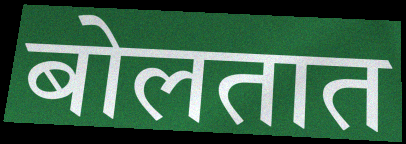
बोलतात